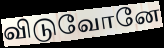
விடுவோனே